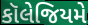
કૉલેજિયમે